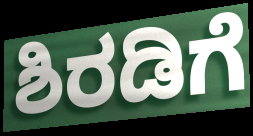
ಶಿರಡಿಗೆ